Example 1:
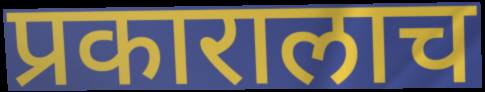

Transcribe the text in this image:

प्रकारालाच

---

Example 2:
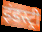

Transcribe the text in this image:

इंडस्ट्री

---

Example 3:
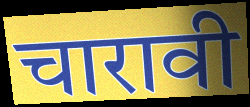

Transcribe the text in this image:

चारावी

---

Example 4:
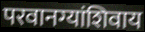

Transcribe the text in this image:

परवानग्यांशिवाय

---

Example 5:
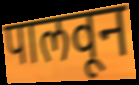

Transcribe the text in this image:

पालवून